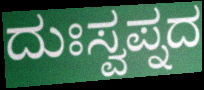
ದುಃಸ್ವಪ್ನದ